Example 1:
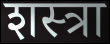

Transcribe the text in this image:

शस्त्रा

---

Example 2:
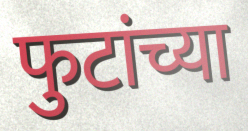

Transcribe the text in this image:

फुटांच्‍या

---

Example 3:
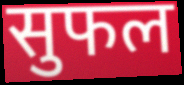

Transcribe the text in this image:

सुफल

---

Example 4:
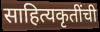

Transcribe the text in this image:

साहित्यकृतींची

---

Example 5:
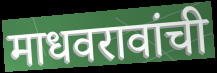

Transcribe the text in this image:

माधवरावांची